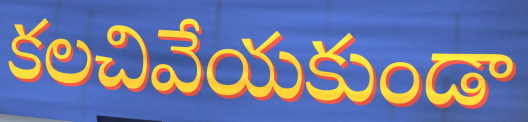
కలచివేయకుండా